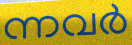
ന്നവർ